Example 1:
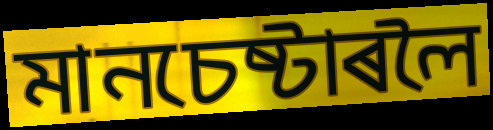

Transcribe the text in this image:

মানচেষ্টাৰলৈ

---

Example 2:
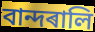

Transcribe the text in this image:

বান্দৰালি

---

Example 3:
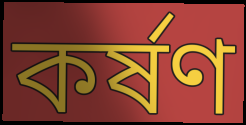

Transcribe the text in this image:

কৰ্ষণ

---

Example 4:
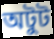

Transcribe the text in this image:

অটুট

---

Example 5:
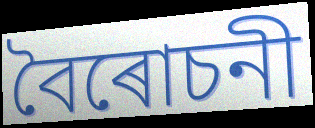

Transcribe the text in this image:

বৈৰোচনী